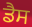
ਡੈਸ